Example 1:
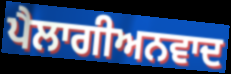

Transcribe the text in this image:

ਪੈਲਾਗੀਅਨਵਾਦ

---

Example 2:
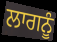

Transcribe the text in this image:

ਲਾਗਨੂੰ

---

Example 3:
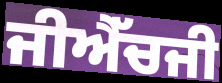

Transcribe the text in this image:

ਜੀਐੱਚਜੀ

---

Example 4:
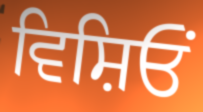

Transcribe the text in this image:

ਵਿਸ਼ਿਓਂ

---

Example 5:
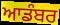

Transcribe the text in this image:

ਆਡੰਬਰ